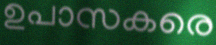
ഉപാസകരെ